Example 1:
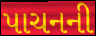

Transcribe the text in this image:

પાચનની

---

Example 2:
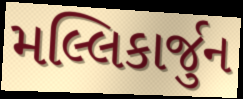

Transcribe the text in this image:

મલ્લિકાર્જુન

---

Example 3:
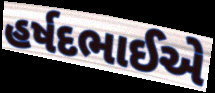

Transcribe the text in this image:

હર્ષદભાઈએ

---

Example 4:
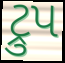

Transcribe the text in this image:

ટ્રુપ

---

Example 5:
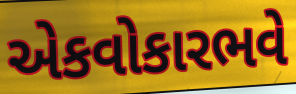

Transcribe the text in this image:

એકવોકારભવે